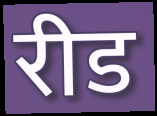
रीड